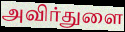
அவிர்துளை